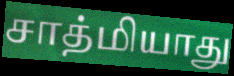
சாத்மியாது